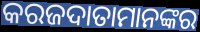
କରଜଦାତାମାନଙ୍କର